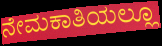
ನೇಮಕಾತಿಯಲ್ಲೂ